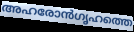
അഹരോൻഗൃഹത്തെ